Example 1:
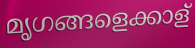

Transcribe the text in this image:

മൃഗങ്ങളെക്കാള്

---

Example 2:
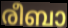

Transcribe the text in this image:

രീബാ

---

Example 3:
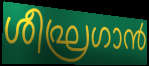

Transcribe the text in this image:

ശീഘ്രഗാൻ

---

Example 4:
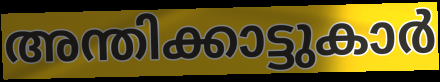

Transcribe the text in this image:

അന്തിക്കാട്ടുകാർ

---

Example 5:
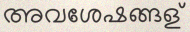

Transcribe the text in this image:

അവശേഷങ്ങള്